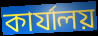
কার্যালয়